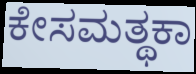
ಕೇಸಮತ್ಥಕಾ